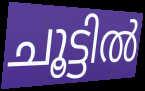
ചൂട്ടിൽ